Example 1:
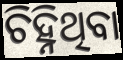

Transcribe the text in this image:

ଚିହ୍ନିଥିବା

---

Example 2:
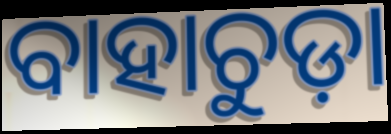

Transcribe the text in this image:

ବାହାଚୁଡ଼ା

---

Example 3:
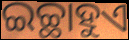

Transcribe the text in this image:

ଇଚ୍ଛାହୁଏ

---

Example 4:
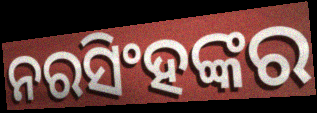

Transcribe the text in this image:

ନରସିଂହଙ୍କର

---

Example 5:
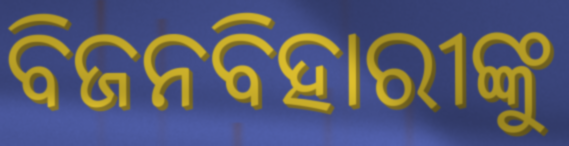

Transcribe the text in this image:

ବିଜନବିହାରୀଙ୍କୁ